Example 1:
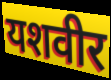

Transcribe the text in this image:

यशवीर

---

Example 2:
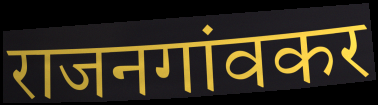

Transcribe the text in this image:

राजनगांवकर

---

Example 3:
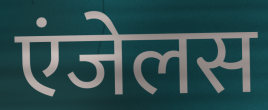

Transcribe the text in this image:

एंजेलस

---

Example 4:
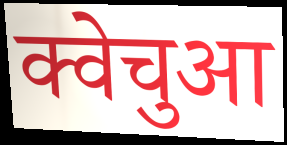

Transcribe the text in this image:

क्वेचुआ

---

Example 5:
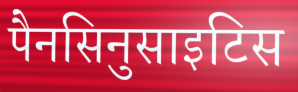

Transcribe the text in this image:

पैनसिनुसाइटिस